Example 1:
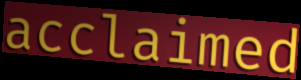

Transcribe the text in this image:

acclaimed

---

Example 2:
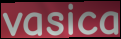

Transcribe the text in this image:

vasica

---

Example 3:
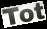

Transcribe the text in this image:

Tot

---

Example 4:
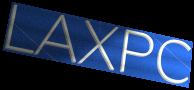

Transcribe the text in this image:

LAXPC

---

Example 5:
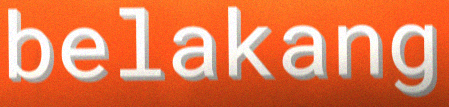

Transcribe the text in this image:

belakang